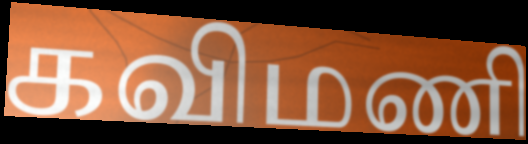
கவிமணி